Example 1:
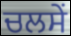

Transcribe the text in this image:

ਚਲਸੇਂ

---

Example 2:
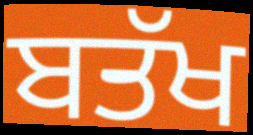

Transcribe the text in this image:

ਬਤੱਖ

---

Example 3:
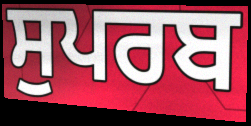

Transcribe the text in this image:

ਸੁਪਰਬ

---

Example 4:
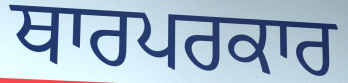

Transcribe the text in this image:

ਥਾਰਪਰਕਾਰ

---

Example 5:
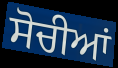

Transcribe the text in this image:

ਸੋਚੀਆਂ